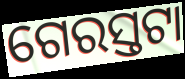
ଗେରସ୍ତଟା